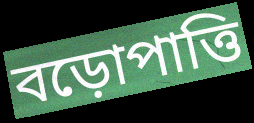
বড়োপাত্তি